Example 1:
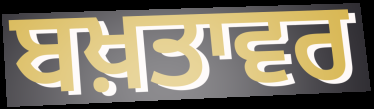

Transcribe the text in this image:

ਬਖ਼ਤਾਵਰ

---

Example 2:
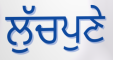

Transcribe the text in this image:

ਲੁੱਚਪੁਣੇ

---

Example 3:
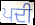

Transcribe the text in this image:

ਪਦੀ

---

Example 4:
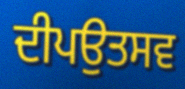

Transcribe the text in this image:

ਦੀਪਉਤਸਵ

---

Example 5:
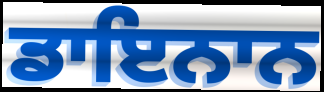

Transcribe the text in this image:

ਡਾਇਨਾਨ